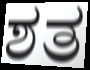
ಶತ